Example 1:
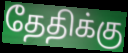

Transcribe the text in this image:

தேதிக்கு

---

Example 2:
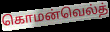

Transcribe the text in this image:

கொமன்வெல்த்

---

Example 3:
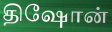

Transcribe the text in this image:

திஷோன்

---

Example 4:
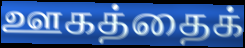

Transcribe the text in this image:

ஊகத்தைக்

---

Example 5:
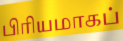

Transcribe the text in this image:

பிரியமாகப்